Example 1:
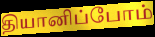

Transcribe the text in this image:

தியானிப்போம்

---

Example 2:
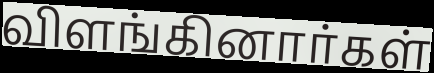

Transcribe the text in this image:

விளங்கினார்கள்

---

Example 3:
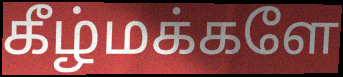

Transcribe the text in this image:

கீழ்மக்களே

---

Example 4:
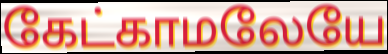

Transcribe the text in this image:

கேட்காமலேயே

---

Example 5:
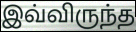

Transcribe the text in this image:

இவ்விருந்த